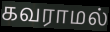
கவராமல்